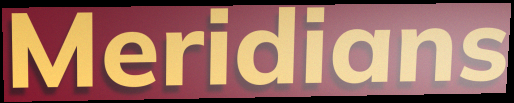
Meridians